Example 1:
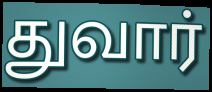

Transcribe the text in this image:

துவார்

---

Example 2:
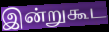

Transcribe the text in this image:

இன்றுகூட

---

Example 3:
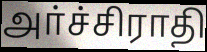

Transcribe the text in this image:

அர்ச்சிராதி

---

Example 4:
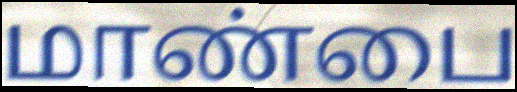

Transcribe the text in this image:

மாண்பை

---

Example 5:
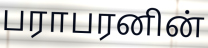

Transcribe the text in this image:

பராபரனின்